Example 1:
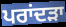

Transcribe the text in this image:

ਪਰਾਂਦੜਾ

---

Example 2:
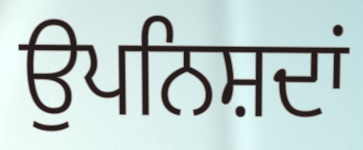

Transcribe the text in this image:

ਉਪਨਿਸ਼ਦਾਂ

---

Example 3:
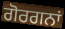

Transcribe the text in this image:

ਗੋਰਗਨਾਂ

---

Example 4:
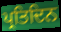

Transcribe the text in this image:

ਪ੍ਰਤਿਦਿਨ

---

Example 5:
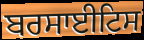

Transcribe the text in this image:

ਬਰਸਾਈਟਿਸ